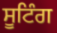
ਸੂਟਿੰਗ